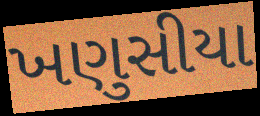
ખણુસીયા